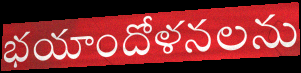
భయాందోళనలను